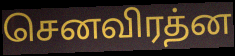
செனவிரத்ன